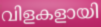
വിളകളായി